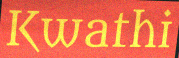
Kwathi